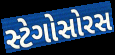
સ્ટેગોસોરસ